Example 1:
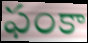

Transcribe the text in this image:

ఫంకా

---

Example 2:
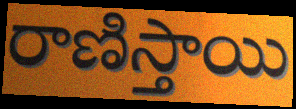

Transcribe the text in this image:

రాణిస్తాయి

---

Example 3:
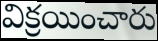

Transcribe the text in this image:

విక్రయించారు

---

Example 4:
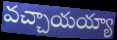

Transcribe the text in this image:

వచ్చాయయ్యా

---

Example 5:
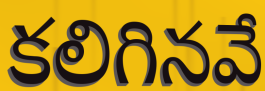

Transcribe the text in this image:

కలిగినవే